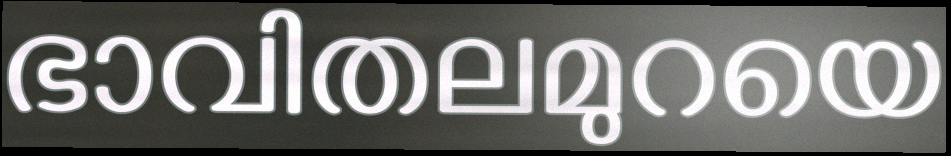
ഭാവിതലമുറയെ